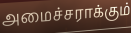
அமைச்சராக்கும்